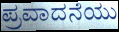
ಪ್ರವಾದನೆಯು